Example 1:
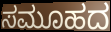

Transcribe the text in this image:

ಸಮೂಹದ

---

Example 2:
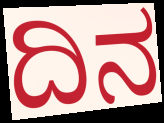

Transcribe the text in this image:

ದಿನ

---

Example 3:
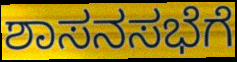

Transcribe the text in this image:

ಶಾಸನಸಭೆಗೆ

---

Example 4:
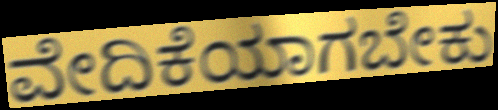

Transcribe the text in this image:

ವೇದಿಕೆಯಾಗಬೇಕು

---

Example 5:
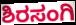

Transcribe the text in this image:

ಶಿರಸಂಗಿ